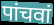
पांचवां